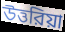
উত্তরিয়া